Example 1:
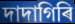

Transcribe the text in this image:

দাদাগিৰি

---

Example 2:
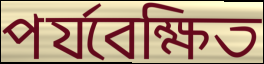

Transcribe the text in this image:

পৰ্যবেক্ষিত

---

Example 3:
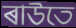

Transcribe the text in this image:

ৰাউতে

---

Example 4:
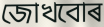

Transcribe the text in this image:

জোখবোৰ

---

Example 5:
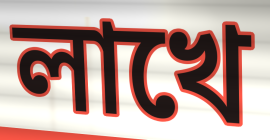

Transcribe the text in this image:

লাখে